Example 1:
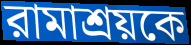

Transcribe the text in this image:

রামাশ্রয়কে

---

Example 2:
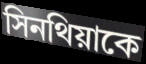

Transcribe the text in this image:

সিনথিয়াকে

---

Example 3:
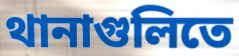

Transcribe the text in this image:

থানাগুলিতে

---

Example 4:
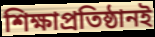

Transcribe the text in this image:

শিক্ষাপ্রতিষ্ঠানই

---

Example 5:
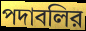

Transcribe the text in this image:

পদাবলির